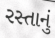
રસ્તાનું